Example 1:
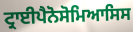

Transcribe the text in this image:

ਟ੍ਰਾਈਪੈਨੋਸੋਮਿਆਸਿਸ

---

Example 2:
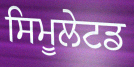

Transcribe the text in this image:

ਸਿਮੂਲੇਟਡ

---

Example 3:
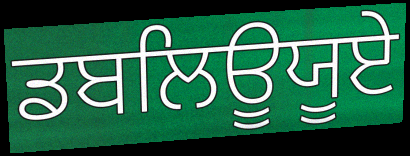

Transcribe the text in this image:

ਡਬਲਿਊਯੂਏ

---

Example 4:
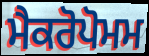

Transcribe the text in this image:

ਮੈਕਰੋਪੋਮਮ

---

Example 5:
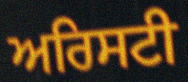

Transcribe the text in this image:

ਅਰਿਸਟੀ